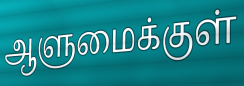
ஆளுமைக்குள்